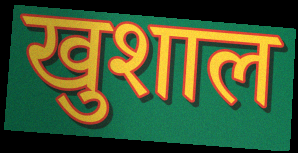
खुशाल